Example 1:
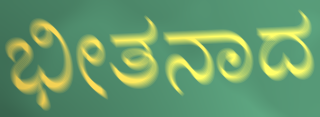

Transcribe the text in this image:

ಭೀತನಾದ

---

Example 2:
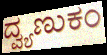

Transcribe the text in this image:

ದ್ವ್ಯಣುಕಂ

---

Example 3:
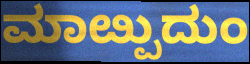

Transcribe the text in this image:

ಮಾೞ್ಪುದುಂ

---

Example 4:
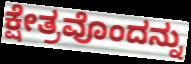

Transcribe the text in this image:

ಕ್ಷೇತ್ರವೊಂದನ್ನು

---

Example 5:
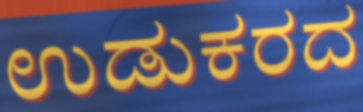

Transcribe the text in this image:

ಉಡುಕರದ